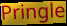
Pringle